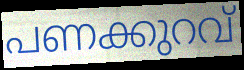
പണക്കുറവ്